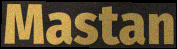
Mastan